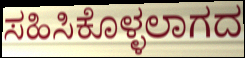
ಸಹಿಸಿಕೊಳ್ಳಲಾಗದ